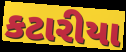
કટારીયા